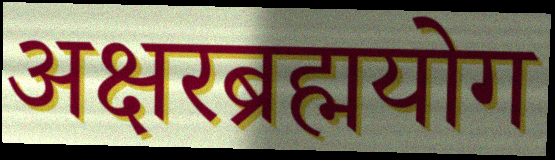
अक्षरब्रह्मयोग